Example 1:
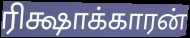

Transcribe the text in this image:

ரிக்ஷாக்காரன்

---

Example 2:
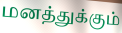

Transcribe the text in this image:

மனத்துக்கும்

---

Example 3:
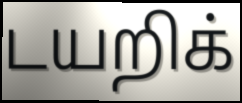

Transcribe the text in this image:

டயறிக்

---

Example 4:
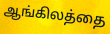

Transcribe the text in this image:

ஆங்கிலத்தை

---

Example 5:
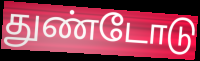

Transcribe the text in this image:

துண்டோடு